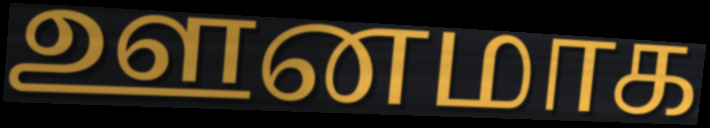
ஊனமாக